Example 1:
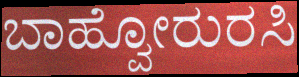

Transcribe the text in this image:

ಬಾಹ್ವೋರುರಸಿ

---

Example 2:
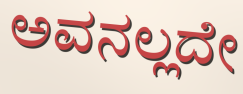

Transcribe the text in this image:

ಅವನಲ್ಲದೇ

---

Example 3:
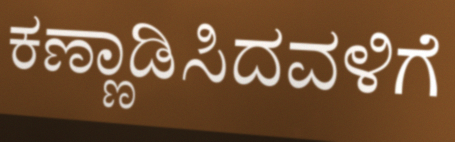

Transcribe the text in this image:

ಕಣ್ಣಾಡಿಸಿದವಳಿಗೆ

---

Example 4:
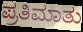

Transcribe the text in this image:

ಪ್ರತಿಮಾತು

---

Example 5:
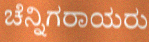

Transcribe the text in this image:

ಚೆನ್ನಿಗರಾಯರು